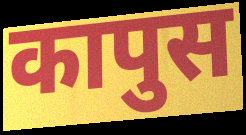
कापुस